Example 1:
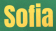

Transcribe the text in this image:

Sofia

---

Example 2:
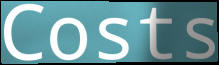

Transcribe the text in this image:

Costs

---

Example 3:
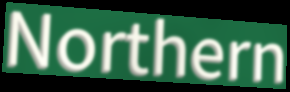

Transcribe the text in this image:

Northern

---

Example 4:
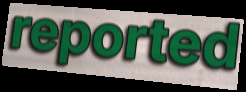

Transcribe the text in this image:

reported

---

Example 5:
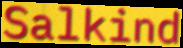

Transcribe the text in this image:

Salkind